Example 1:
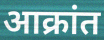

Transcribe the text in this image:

आक्रांत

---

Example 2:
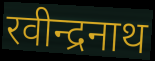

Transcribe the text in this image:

रवीन्द्रनाथ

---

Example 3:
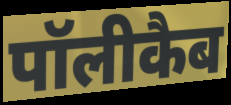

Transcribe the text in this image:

पॉलीकैब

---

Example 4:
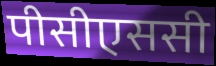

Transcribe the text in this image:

पीसीएससी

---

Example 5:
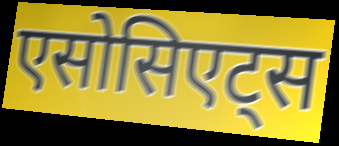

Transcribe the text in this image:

एसोसिएट्स